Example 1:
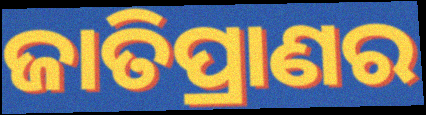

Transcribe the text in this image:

ଜାତିପ୍ରାଣର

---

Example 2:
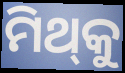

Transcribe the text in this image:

ମିଥ୍‍କୁ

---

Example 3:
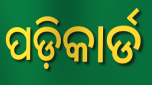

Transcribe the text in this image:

ପଡ଼ିକାର୍ଡ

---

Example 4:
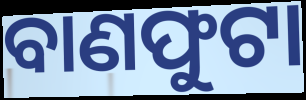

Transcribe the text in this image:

ବାଣଫୁଟା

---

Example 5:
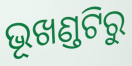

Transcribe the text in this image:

ଭୂଖଣ୍ଡଟିରୁ